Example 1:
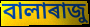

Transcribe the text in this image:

বালাৰাজু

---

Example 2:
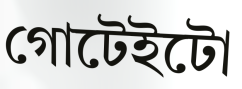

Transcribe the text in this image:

গোটেইটো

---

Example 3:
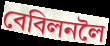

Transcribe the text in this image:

বেবিলনলৈ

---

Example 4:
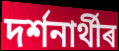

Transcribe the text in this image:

দৰ্শনাৰ্থীৰ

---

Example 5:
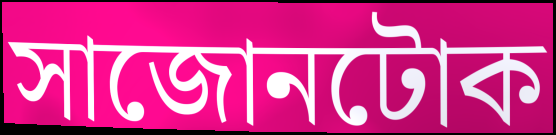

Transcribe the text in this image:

সাজোনটোক